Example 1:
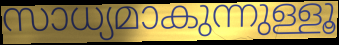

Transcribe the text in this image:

സാധ്യമാകുന്നുള്ളൂ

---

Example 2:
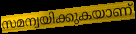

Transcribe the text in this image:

സമന്വയിക്കുകയാണ്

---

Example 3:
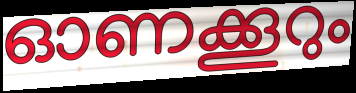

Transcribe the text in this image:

ഓണക്കൂറും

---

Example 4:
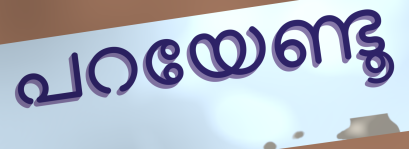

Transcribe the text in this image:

പറയേണ്ടൂ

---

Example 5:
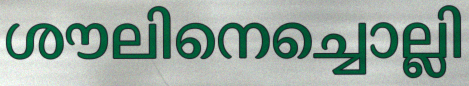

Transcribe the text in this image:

ശൗലിനെച്ചൊല്ലി